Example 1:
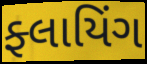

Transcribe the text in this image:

ફ્લાયિંગ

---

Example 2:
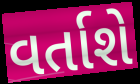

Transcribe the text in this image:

વર્તાશે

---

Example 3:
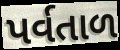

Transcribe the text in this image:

પર્વતાળ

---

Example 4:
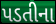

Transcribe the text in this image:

પડતીના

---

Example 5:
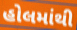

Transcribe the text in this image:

હોલમાંથી